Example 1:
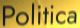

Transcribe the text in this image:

Politica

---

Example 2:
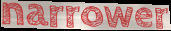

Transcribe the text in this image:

narrower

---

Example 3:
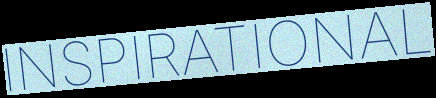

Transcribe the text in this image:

INSPIRATIONAL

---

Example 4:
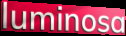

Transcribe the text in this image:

luminosa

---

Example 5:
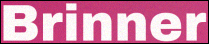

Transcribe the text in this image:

Brinner